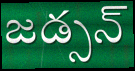
జడ్సన్